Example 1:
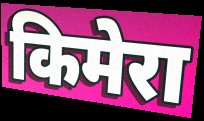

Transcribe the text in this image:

किमेरा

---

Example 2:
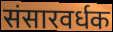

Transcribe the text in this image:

संसारवर्धक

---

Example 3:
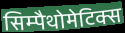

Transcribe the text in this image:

सिम्पैथोमेटिक्स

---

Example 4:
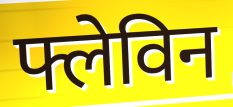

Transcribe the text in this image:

फ्लेविन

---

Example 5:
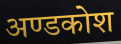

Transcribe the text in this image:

अण्डकोश